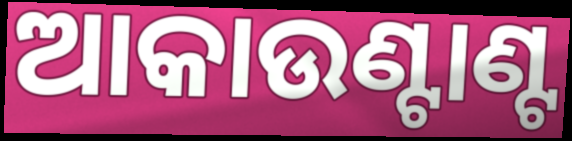
ଆକାଉଣ୍ଟାଣ୍ଟ